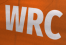
WRC